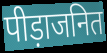
पीड़ाजनित